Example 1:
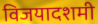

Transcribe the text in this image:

विजयादशमी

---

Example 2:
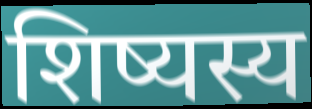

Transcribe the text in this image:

शिष्यस्य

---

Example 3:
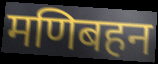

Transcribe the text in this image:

मणिबहन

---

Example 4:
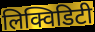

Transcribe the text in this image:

लिक्विडिटी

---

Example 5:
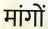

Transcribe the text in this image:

मांगों